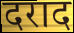
दराद